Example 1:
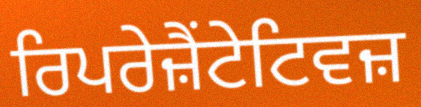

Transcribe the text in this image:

ਰਿਪਰੇਜ਼ੈਂਟੇਟਿਵਜ਼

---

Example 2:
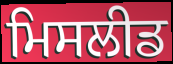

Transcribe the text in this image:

ਮਿਸਲੀਡ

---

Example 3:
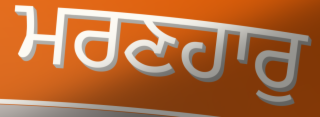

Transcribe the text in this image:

ਮਰਣਹਾਰੁ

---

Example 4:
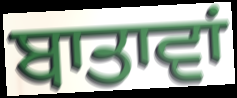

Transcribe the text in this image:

ਬਾਤਾਵਾਂ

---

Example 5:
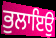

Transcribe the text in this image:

ਭੁਲਾਇਉ